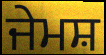
ਜੇਮਸ਼